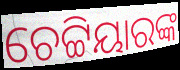
ଚେଟ୍ଟିୟାରଙ୍କ